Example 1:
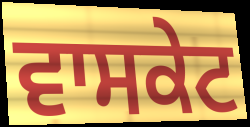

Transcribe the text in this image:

ਵਾਸਕੇਟ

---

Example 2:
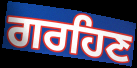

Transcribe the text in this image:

ਗਰਹਿਣ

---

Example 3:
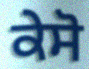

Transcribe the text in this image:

ਕੇਸੋ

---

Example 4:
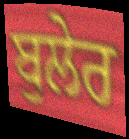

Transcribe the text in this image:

ਬੁਲੇਰ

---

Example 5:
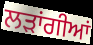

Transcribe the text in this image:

ਲੜਾਂਗੀਆਂ